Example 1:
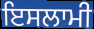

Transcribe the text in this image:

ਇਸਲਾਮੀ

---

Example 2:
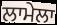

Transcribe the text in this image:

ਲਾਮੇਲਾ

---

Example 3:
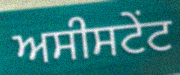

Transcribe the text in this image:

ਅਸੀਸਟੇਂਟ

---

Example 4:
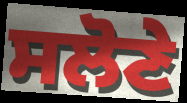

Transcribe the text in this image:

ਸਲੋਣੇ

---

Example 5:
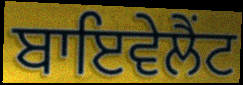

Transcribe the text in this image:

ਬਾਇਵੇਲੈਂਟ